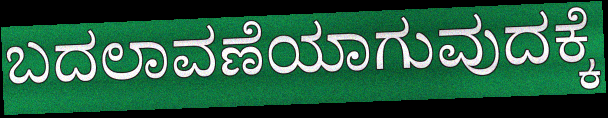
ಬದಲಾವಣೆಯಾಗುವುದಕ್ಕೆ